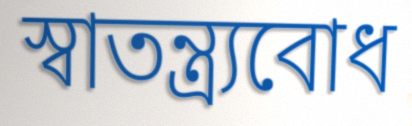
স্বাতন্ত্র্যবোধ